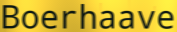
Boerhaave